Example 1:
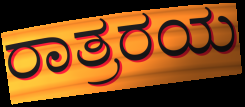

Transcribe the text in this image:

ರಾತ್ರರಯ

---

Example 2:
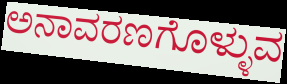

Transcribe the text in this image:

ಅನಾವರಣಗೊಳ್ಳುವ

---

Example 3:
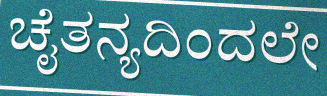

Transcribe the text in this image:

ಚೈತನ್ಯದಿಂದಲೇ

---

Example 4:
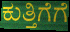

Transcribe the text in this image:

ಕುತ್ತಿಗೆಗೆ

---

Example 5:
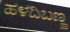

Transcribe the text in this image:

ಹಳದಿಬಣ್ಣ